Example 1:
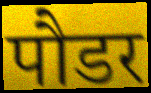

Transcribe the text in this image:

पौडर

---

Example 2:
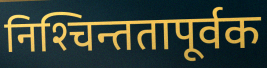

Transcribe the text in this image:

निश्चिन्ततापूर्वक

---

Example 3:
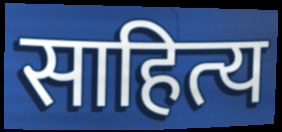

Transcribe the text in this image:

साहित्‍य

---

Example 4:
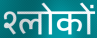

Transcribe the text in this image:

श्लोकों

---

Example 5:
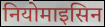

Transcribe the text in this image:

नियोमाइसिन